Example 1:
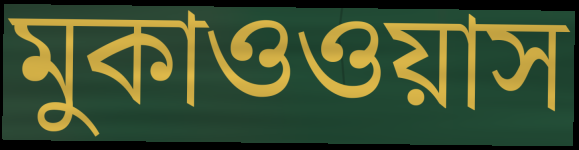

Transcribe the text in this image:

মুকাওওয়াস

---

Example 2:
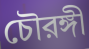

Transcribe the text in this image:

চৌরঙ্গী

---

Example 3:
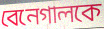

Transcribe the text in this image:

বেনেগালকে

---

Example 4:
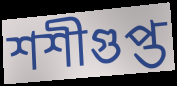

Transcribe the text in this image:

শশীগুপ্ত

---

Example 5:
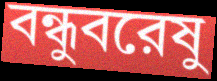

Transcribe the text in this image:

বন্ধুবরেষু